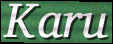
Karu